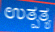
ಉತ್ಪತ್ಯ